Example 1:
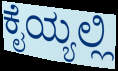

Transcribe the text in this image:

ಕೈಯ್ಯಲ್ಲಿ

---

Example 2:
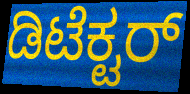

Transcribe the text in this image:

ಡಿಟೆಕ್ಟರ್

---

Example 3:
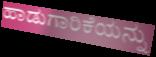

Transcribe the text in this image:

ಹಾಡುಗಾರಿಕೆಯನ್ನು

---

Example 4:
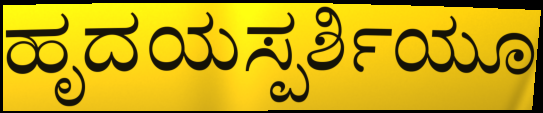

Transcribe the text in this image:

ಹೃದಯಸ್ಪರ್ಶಿಯೂ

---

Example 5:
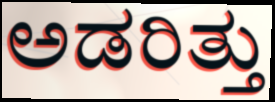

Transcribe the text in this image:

ಅಡರಿತ್ತು